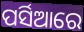
ପର୍ସିଆରେ